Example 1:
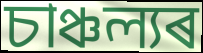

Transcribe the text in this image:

চাঞ্চল্যৰ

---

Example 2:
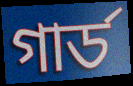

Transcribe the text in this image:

গাৰ্ড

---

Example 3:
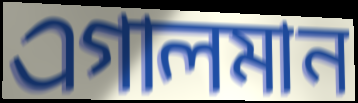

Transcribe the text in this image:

এগালমান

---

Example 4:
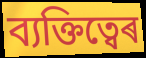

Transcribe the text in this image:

ব্যক্তিত্বেৰ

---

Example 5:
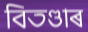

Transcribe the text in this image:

বিতণ্ডাৰ